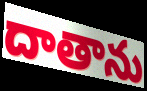
దాతాను